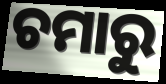
ଚମାରୁ